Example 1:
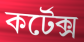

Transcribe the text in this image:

কর্টেক্স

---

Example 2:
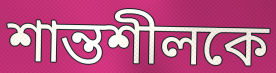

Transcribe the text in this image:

শান্তশীলকে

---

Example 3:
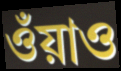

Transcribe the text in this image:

ওঁয়াও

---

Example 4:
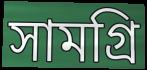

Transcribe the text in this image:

সামগ্রি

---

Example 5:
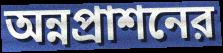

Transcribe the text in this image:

অন্নপ্রাশনের